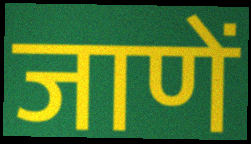
जाणें